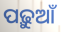
ପଢ଼ୁଆଁ